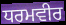
ਧਰਮਵੀਰ